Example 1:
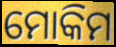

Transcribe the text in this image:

ମୋକିମ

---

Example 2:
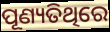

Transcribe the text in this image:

ପୂଣ୍ୟତିଥିରେ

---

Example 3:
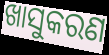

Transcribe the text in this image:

ଖାସୁକରଣ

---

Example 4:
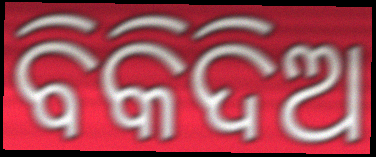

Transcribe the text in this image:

ବିକିଦିଅ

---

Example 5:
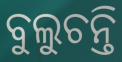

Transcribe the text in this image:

ବୁଲୁଚନ୍ତି